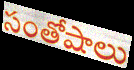
సంతోషాలు